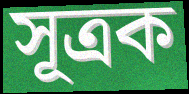
সূত্ৰক